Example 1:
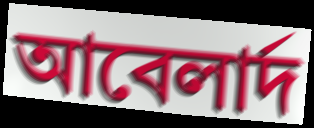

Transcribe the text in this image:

আবেলার্দ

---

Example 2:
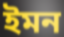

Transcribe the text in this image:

ইমন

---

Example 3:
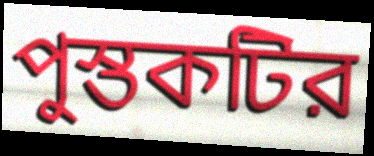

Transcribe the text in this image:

পুস্তকটির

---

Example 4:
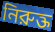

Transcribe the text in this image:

নিরুক্ত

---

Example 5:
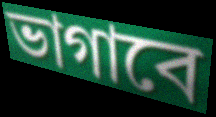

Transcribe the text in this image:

ভাগাবে